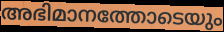
അഭിമാനത്തോടെയും